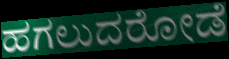
ಹಗಲುದರೋಡೆ